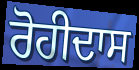
ਰੋਹੀਦਾਸ